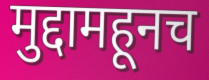
मुद्दामहूनच